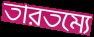
তারতম্যে